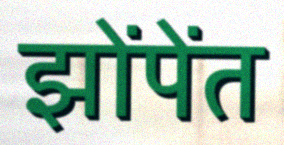
झोंपेंत